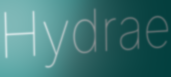
Hydrae